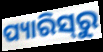
ପ୍ୟାରିସ୍‌ରୁ